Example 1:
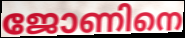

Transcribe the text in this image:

ജോണിനെ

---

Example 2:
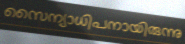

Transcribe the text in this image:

സൈന്യാധിപനായിരുന്നു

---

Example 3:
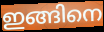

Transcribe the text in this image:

ഇങ്ങിനെ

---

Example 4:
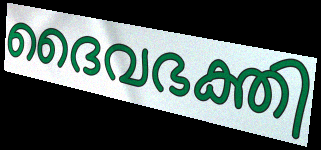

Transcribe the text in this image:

ദൈവഭക്തി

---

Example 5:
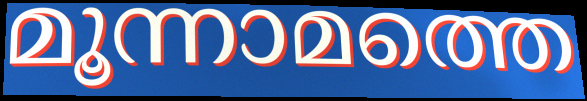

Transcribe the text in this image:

മൂന്നാമത്തെ